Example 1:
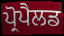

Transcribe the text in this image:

ਪ੍ਰੋਪੈਲਡ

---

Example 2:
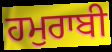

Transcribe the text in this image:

ਹਮੁਰਾਬੀ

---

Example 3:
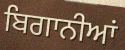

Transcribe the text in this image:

ਬਿਗਾਨੀਆਂ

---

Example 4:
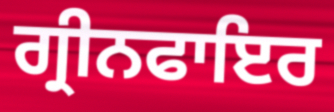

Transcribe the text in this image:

ਗ੍ਰੀਨਫਾਇਰ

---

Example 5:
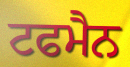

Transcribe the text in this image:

ਟਫਮੈਨ